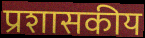
प्रशासकीय